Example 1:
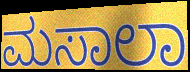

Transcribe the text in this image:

ಮಸಾಲಾ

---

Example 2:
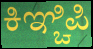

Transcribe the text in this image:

ಕಿಞ್ಚಿಪಿ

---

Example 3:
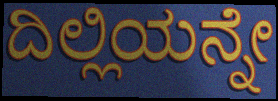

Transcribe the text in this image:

ದಿಲ್ಲಿಯನ್ನೇ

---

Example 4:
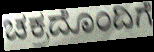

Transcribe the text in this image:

ಚಕ್ರದೊಂದಿಗೆ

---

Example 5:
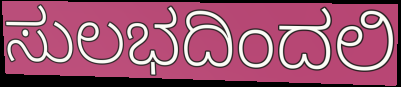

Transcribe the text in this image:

ಸುಲಭದಿಂದಲಿ